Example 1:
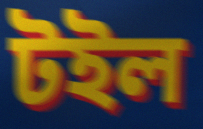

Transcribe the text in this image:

টইল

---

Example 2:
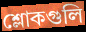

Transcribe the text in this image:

শ্লোকগুলি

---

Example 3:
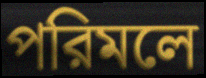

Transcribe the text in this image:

পরিমলে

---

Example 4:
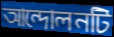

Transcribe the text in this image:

আন্দোলনটি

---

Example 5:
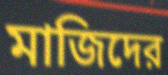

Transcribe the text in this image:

মাজিদের